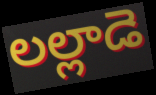
లల్లాడె